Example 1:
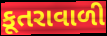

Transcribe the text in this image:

કૂતરાવાળી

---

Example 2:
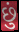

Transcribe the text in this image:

છું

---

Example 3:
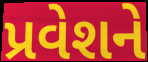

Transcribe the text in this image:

પ્રવેશને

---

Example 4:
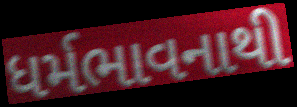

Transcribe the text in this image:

ધર્મભાવનાથી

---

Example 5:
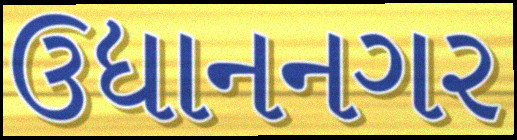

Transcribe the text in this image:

ઉદ્યાનનગર